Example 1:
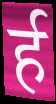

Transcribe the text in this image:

र्ह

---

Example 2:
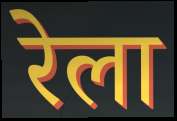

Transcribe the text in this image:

रेला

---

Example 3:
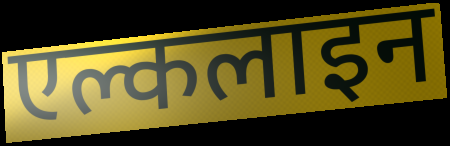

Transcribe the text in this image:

एल्कलाइन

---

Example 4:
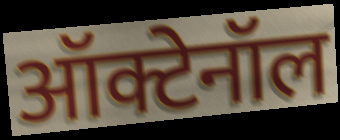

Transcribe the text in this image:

ऑक्टेनॉल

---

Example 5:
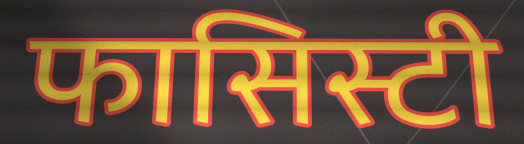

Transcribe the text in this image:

फासिस्टी